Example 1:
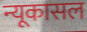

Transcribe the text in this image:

न्यूकासल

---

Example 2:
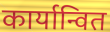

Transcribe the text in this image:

कार्यान्वित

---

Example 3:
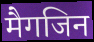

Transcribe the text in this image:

मैगजिन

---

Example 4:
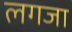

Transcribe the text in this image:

लगजा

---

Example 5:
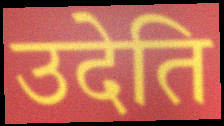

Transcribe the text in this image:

उदेति